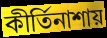
কীর্তিনাশায়